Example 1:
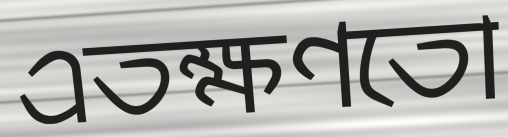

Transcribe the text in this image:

এতক্ষণতো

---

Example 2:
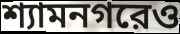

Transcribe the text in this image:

শ্যামনগরেও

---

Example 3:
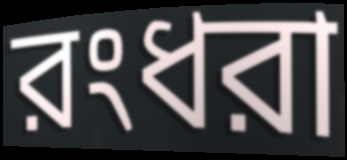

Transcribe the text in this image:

রংধরা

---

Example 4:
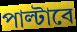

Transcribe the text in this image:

পাল্টাবে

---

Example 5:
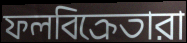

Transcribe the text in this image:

ফলবিক্রেতারা